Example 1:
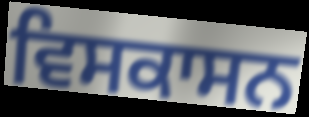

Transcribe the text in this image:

ਵਿਸਕਾਸਨ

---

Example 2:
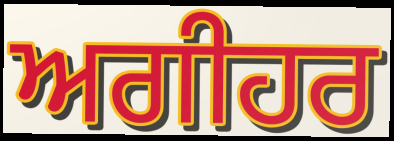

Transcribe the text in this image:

ਅਗੀਹਰ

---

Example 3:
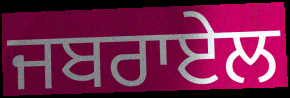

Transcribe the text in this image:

ਜਬਰਾਏਲ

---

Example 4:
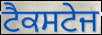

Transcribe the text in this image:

ਟੈਕਸਟੇਜ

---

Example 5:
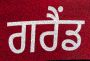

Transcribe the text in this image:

ਗਰੈਂਡ